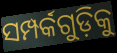
ସମ୍ପର୍କଗୁଡ଼ିକୁ